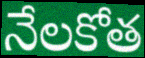
నేలకోత